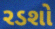
રડશો